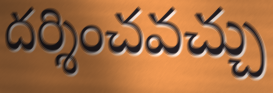
దర్శించవచ్చు